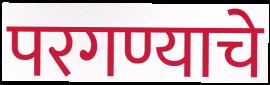
परगण्याचे